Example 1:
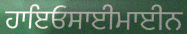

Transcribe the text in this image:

ਹਾਇਓਸਾਈਮਾਈਨ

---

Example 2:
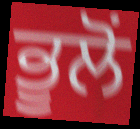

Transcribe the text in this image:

ਭੂਲੋਂ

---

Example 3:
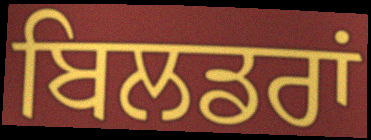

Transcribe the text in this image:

ਬਿਲਡਰਾਂ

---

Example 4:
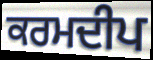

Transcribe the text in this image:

ਕਰਮਦੀਪ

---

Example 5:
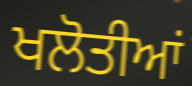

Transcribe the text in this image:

ਖਲੋਤੀਆਂ